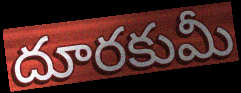
దూరకుమీ